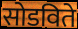
सोडविते